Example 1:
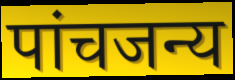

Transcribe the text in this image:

पांचजन्य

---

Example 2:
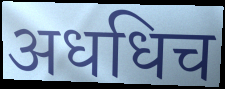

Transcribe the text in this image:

अधधिच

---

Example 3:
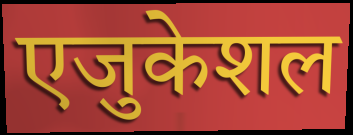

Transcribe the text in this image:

एजुकेशल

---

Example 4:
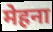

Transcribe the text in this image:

मेहना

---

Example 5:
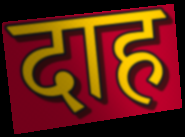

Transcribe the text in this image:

दाह